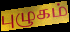
புழுகம்